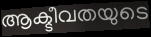
ആക്ടീവതയുടെ